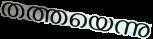
തത്തയെന്നു